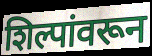
शिल्पांवरून